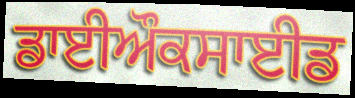
ਡਾਈਔਕਸਾਈਡ